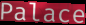
Palace